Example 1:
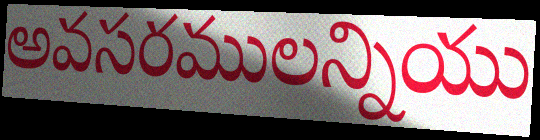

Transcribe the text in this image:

అవసరములన్నియు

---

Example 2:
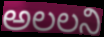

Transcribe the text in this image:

అలలని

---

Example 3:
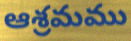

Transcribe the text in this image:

ఆశ్రమము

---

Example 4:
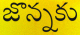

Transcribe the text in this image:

జొన్నకు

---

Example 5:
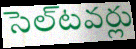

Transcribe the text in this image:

సెల్‌టవర్లు